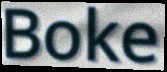
Boke